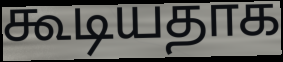
கூடியதாக